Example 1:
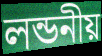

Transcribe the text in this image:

লন্ডনীয়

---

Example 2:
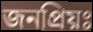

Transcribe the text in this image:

জনপ্রিয়ঃ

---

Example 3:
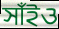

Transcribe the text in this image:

সাঁইও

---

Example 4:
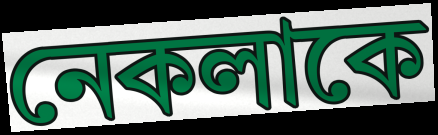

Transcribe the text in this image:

নেকলাকে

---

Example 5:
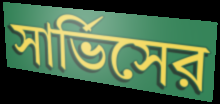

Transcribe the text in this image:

সার্ভিসের